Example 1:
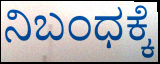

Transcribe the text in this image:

ನಿಬಂಧಕ್ಕೆ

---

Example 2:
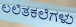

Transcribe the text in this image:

ಲಲಿತಕಲೆಗಳು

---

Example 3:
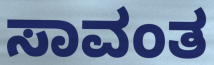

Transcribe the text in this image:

ಸಾವಂತ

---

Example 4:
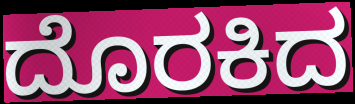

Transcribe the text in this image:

ದೊರಕಿದ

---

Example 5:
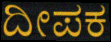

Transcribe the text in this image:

ದೀಪಕ